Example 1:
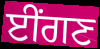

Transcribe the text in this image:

ਈਂਗਣ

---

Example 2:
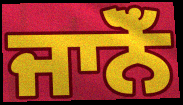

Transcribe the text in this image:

ਜਾਨੋਁ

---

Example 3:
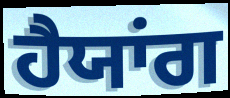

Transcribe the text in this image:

ਹੈਯਾਂਗ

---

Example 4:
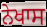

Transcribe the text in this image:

ਨੇਖਾਸ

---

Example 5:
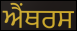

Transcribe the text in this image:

ਐਂਥਰਸ